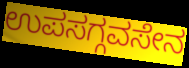
ಉಪಸಗ್ಗವಸೇನ